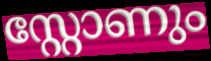
സ്റ്റോണും